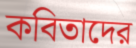
কবিতাদের